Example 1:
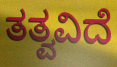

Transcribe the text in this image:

ತತ್ವವಿದೆ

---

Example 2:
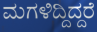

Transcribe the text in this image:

ಮಗಳಿದ್ದಿದ್ದರೆ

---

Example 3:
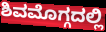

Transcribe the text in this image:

ಶಿವಮೊಗ್ಗದಲ್ಲಿ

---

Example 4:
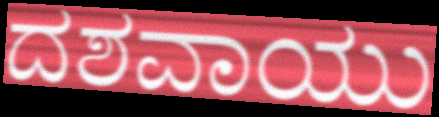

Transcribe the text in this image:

ದಶವಾಯು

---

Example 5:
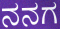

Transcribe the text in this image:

ನನಗ